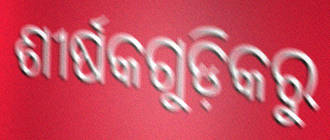
ଶୀର୍ଷକଗୁଡ଼ିକରୁ